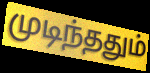
முடிந்ததும்